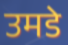
उमडे